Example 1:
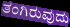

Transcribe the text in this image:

ತಂಗಿರುವುದು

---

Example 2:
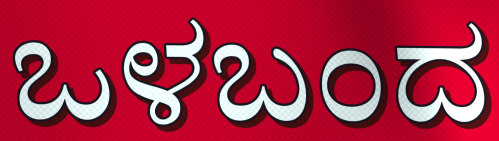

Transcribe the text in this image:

ಒಳಬಂದ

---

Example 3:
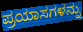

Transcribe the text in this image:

ಪ್ರಯಾಸಗಳನ್ನು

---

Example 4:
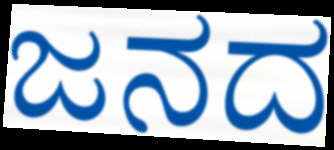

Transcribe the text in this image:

ಜನದ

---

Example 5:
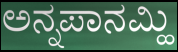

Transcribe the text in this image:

ಅನ್ನಪಾನಮ್ಹಿ